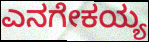
ಎನಗೇಕಯ್ಯ